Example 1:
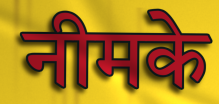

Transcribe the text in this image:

नीमके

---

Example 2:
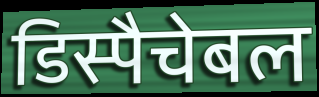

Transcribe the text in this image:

डिस्पैचेबल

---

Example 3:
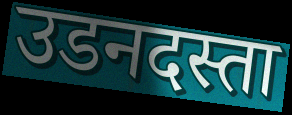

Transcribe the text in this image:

उडनदस्ता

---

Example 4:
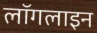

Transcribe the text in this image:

लॉगलाइन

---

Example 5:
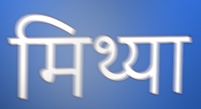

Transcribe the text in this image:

मिथ्‍या